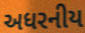
અધરનીય